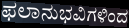
ಫಲಾನುಭವಿಗಳಿಂದ